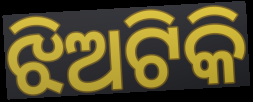
ଝିଅଟିକି